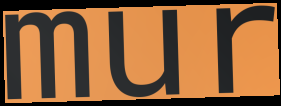
mur